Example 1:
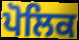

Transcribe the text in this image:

ਪੋਲਿਕ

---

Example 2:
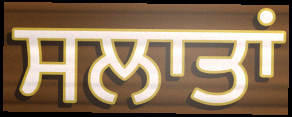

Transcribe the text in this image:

ਸਲਾਤਾਂ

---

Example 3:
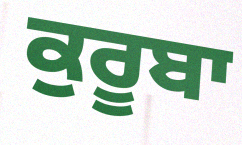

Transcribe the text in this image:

ਕੁਰੂਬਾ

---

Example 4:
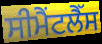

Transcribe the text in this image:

ਸੀਮੈਂਟਲੈੱਸ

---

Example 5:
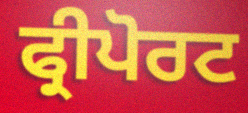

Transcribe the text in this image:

ਫ੍ਰੀਪੋਰਟ